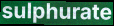
sulphurate